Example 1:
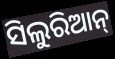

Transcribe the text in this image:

ସିଲୁରିଆନ୍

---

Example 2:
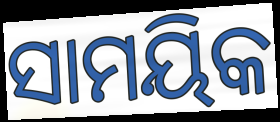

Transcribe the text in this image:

ସାମୟିକ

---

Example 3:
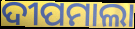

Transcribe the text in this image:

ଦୀପମାଲା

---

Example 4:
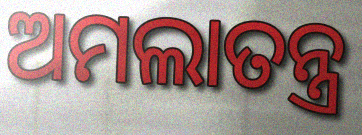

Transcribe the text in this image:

ଅମଲାତନ୍ତ୍ର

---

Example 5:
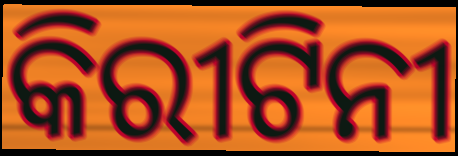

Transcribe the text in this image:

କିରୀଟିନୀ